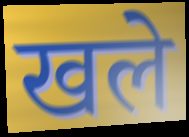
खले